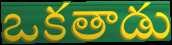
ఒకతాడు